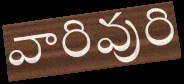
వారివురి